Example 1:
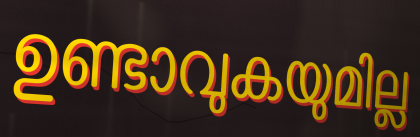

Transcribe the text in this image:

ഉണ്ടാവുകയുമില്ല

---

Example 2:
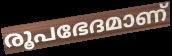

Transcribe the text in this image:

രൂപഭേദമാണ്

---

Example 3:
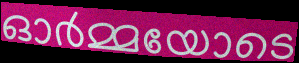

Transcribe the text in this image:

ഓർമ്മയോടെ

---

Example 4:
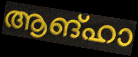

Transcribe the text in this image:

ആങ്ഹാ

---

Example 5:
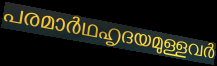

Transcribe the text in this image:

പരമാർഥഹൃദയമുള്ളവർ